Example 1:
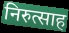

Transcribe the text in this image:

निरुत्साह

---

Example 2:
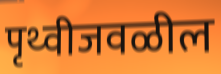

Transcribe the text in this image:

पृथ्वीजवळील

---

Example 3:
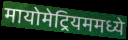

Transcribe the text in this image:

मायोमेट्रियममध्ये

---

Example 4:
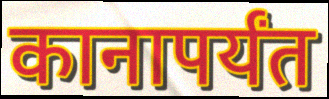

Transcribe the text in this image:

कानापर्यंत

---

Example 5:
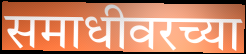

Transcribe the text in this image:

समाधीवरच्या